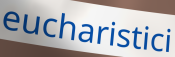
eucharistici